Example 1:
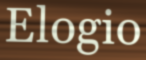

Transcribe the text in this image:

Elogio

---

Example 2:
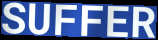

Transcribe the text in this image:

SUFFER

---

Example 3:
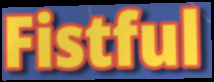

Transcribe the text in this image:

Fistful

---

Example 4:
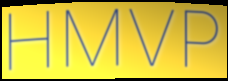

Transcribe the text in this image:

HMVP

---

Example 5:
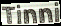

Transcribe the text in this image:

Tinni